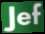
Jef